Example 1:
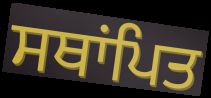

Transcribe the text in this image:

ਸਥਾਂਪਿਤ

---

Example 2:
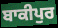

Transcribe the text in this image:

ਬਾਕੀਪੁਰ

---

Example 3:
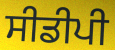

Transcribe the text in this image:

ਸੀਡੀਪੀ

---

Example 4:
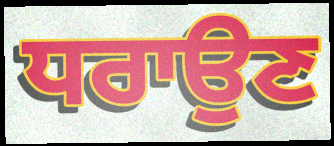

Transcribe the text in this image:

ਧਰਾਉਣ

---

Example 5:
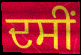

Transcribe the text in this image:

ਦਸੀਂ